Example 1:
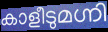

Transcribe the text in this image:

കാളീടുമഗ്നി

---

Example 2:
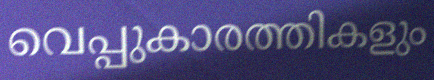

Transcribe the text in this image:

വെപ്പുകാരത്തികളും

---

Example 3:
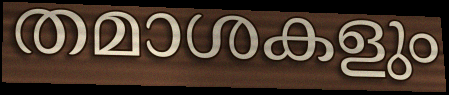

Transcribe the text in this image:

തമാശകളും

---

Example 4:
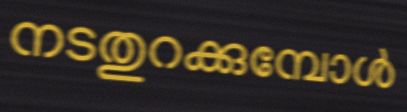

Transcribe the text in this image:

നടതുറക്കുമ്പോൾ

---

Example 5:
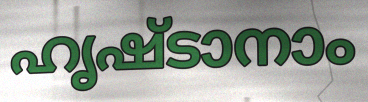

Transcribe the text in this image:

ഹൃഷ്ടാനാം